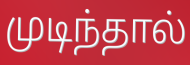
முடிந்தால்